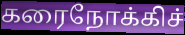
கரைநோக்கிச்